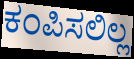
ಕಂಪಿಸಲಿಲ್ಲ